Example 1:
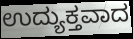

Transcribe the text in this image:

ಉದ್ಯುಕ್ತವಾದ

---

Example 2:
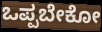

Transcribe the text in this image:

ಒಪ್ಪಬೇಕೋ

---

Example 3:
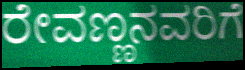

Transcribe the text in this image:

ರೇವಣ್ಣನವರಿಗೆ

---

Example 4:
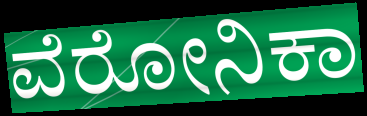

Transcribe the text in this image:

ವೆರೋನಿಕಾ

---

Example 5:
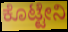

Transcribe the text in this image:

ಕೊಟ್ಟೇನಿ